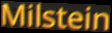
Milstein